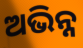
ଅଭିନ୍ନ